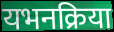
यभनक्रिया